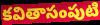
కవితాసంపుటి